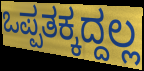
ಒಪ್ಪತಕ್ಕದ್ದಲ್ಲ